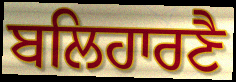
ਬਲਿਹਾਰਣੈ